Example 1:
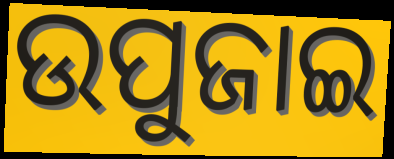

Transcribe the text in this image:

ଉପୁଜାଇ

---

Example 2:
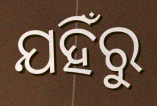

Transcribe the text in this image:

ଯହିଁରୁ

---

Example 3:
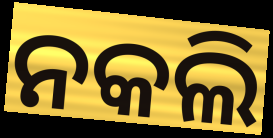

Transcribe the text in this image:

ନକଲି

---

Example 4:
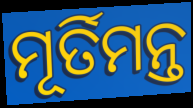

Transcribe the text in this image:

ମୂର୍ତିମନ୍ତ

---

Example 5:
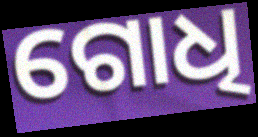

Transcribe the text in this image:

ଗୋଧି